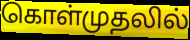
கொள்முதலில்